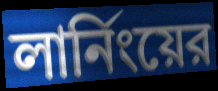
লার্নিংয়ের